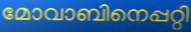
മോവാബിനെപ്പറ്റി